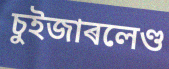
চুইজাৰলেণ্ড